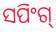
ସପିଂଗ୍